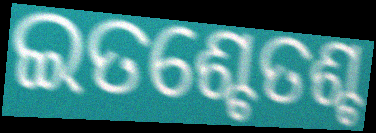
ଇତଶ୍ଚେତଶ୍ଚ